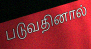
படுவதினால்